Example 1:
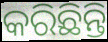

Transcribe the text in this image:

କରିଛିନ୍ତି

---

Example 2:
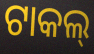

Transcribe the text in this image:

ଟାକଲ୍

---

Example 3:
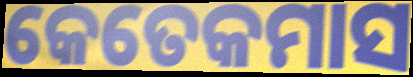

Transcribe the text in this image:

କେତେକମାସ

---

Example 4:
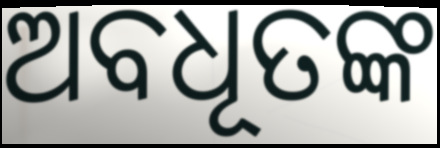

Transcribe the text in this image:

ଅବଧୂତଙ୍କ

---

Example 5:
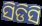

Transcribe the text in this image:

ସିଡିସି